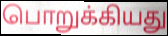
பொறுக்கியது